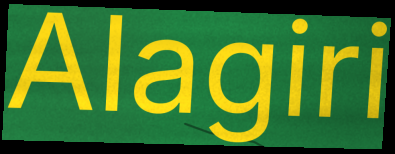
Alagiri